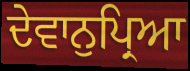
ਦੇਵਾਨੁਪ੍ਰਿਆ